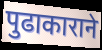
पुढाकाराने